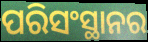
ପରିସଂସ୍ଥାନର